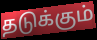
தடுக்கும்